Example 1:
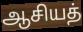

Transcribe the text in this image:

ஆசியத்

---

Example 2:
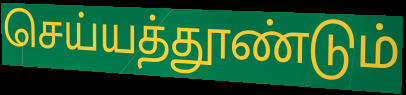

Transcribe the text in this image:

செய்யத்தூண்டும்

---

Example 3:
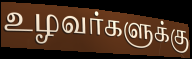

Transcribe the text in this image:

உழவர்களுக்கு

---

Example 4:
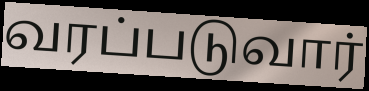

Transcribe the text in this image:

வரப்படுவார்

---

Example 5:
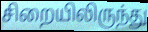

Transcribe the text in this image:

சிறையிலிருந்து